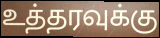
உத்தரவுக்கு